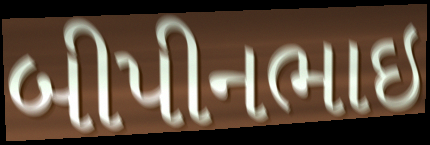
બીપીનભાઇ